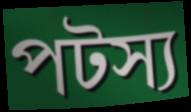
পটস্য